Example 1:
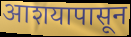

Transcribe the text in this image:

आशयापासून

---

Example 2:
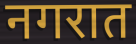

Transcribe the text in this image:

नगरात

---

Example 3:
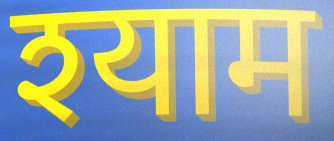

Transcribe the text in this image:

श्‍याम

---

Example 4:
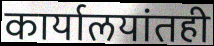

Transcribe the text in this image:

कार्यालयांतही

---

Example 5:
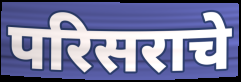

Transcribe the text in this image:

परिसराचे